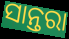
ସାନ୍ତରା